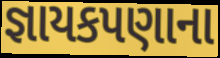
જ્ઞાયકપણાના